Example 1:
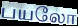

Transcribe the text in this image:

பயலோ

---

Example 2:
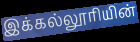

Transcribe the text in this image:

இக்கல்லூரியின்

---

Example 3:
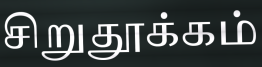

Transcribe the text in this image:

சிறுதூக்கம்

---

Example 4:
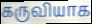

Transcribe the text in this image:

கருவியாக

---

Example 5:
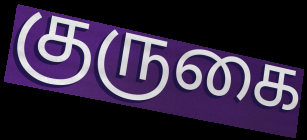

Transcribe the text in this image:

குருகை